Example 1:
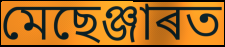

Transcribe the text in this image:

মেছেঞ্জাৰত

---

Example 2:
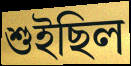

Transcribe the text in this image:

শুইছিল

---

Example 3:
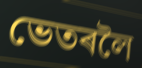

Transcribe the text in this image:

ভেতৰলৈ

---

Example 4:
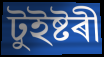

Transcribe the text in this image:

টুইষ্টৰী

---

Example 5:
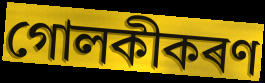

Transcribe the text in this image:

গোলকীকৰণ